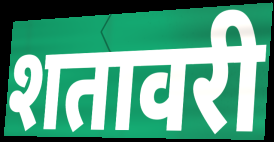
शतावरी